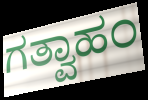
ಗತ್ವಾಹಂ